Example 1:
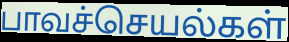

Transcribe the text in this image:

பாவச்செயல்கள்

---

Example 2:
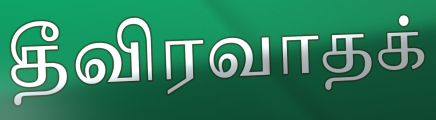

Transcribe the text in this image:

தீவிரவாதக்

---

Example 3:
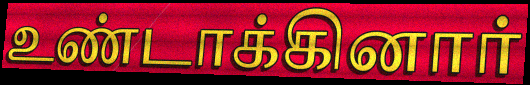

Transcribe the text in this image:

உண்டாக்கினார்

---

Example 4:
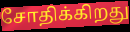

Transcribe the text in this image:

சோதிக்கிறது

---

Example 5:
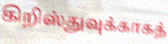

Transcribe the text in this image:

கிறிஸ்துவுக்காகத்